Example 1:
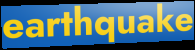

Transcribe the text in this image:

earthquake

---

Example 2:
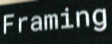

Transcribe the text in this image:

Framing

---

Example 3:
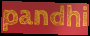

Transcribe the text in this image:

pandhi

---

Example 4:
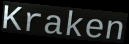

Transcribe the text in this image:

Kraken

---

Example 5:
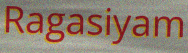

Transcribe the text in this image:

Ragasiyam